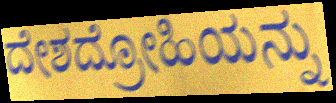
ದೇಶದ್ರೋಹಿಯನ್ನು